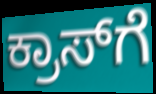
ಕ್ರಾಸ್‌ಗೆ